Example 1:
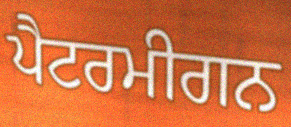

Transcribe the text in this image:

ਪੈਟਰਮੀਗਨ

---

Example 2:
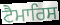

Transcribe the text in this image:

ਟੈਮਾਰਿਸ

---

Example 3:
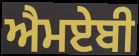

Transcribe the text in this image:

ਐਮਏਬੀ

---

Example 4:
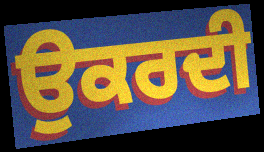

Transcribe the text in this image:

ਉਕਰਦੀ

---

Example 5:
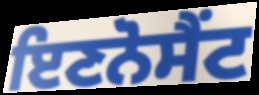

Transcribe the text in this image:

ਇਣਨੋਸੈਂਟ